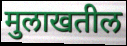
मुलाखतील